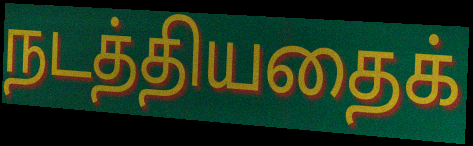
நடத்தியதைக்